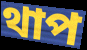
থাপ